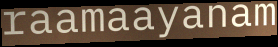
raamaayanam